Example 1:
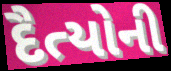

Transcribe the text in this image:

દૈત્યોની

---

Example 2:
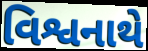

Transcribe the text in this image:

વિશ્વનાથે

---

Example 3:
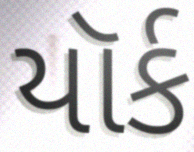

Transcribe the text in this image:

યૉર્ક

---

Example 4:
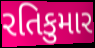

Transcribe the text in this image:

રતિકુમાર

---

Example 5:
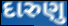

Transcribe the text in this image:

દારુણુ